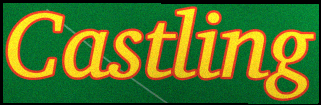
Castling